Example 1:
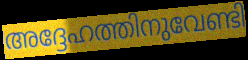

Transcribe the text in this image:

അദ്ദേഹത്തിനുവേണ്ടി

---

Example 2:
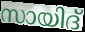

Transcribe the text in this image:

സായിദ്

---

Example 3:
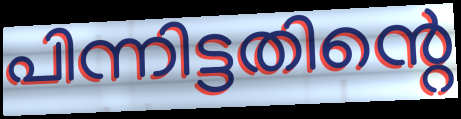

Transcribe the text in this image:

പിന്നിട്ടതിന്റെ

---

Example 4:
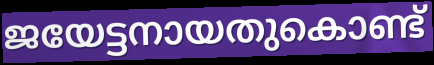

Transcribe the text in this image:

ജയേട്ടനായതുകൊണ്ട്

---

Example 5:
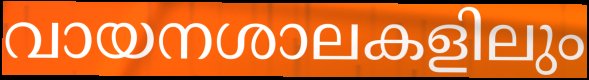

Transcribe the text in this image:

വായനശാലകളിലും